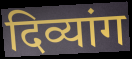
दिव्यांग